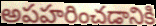
అపహరించడానికి